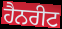
ਹੈਨਰੀਟ